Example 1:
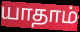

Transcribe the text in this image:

யாதாம்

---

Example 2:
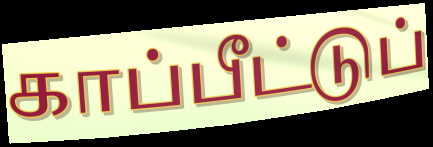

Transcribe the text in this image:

காப்பீட்டுப்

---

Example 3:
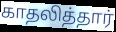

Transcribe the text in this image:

காதலித்தார்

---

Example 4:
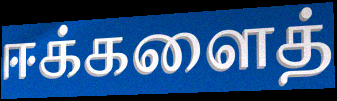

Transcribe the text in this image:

ஈக்களைத்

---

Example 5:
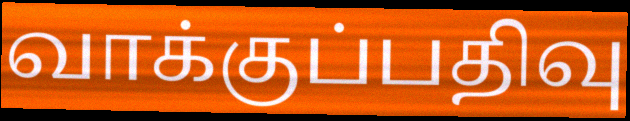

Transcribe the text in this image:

வாக்குப்பதிவு